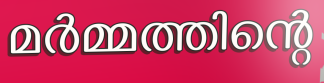
മർമ്മത്തിന്റെ